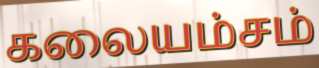
கலையம்சம்